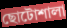
ছোটোশালা